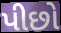
પીછો